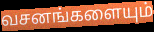
வசனங்களையும்